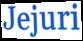
Jejuri